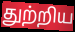
துற்றிய